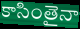
కాసింతైనా